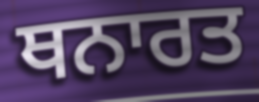
ਥਨਾਰਤ